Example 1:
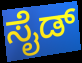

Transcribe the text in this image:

ಸೈಡ್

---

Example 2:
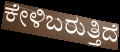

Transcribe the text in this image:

ಕೇಳಿಬರುತ್ತಿದೆ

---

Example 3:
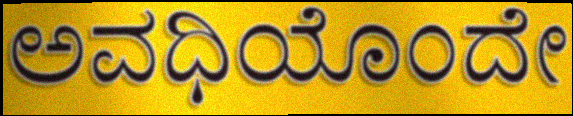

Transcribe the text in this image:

ಅವಧಿಯೊಂದೇ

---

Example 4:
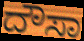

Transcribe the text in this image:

ದೌಸಾ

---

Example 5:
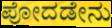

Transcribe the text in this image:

ಪೋದಡೇನು